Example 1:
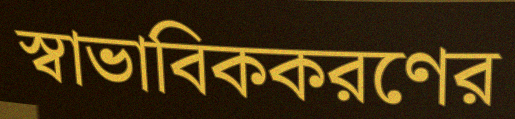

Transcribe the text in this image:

স্বাভাবিককরণের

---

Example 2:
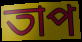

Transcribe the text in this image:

তাপ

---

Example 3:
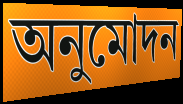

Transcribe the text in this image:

অনুমোদন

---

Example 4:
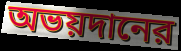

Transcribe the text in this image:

অভয়দানের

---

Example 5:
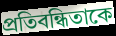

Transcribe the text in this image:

প্রতিবন্ধিতাকে